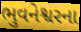
ભુવનેશ્વરના